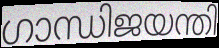
ഗാന്ധിജയന്തി